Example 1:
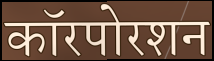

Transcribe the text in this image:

कॉरपोरशन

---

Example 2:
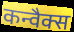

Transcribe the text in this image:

कन्वैक्स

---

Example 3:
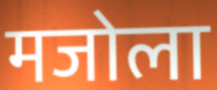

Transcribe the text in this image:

मजोला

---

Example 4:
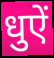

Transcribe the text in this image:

धुऐं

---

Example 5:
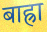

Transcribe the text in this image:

बाह्रा